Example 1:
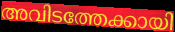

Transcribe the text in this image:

അവിടത്തേക്കായി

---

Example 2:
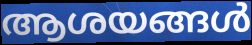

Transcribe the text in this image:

ആശയങ്ങൾ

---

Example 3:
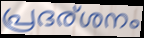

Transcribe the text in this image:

പ്രദര്ശനം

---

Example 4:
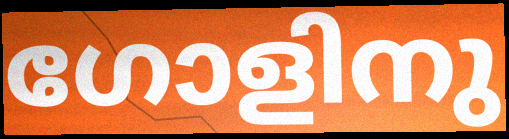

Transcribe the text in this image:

ഗോളിനു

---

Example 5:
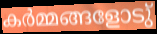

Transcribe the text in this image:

കർമ്മങ്ങളോടു്